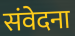
संवेदना